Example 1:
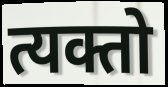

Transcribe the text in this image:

त्यक्तो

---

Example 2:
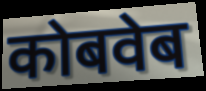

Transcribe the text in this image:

कोबवेब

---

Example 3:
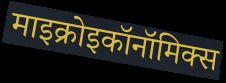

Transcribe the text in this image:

माइक्रोइकॉनॉमिक्स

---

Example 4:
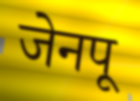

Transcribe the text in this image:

जेनपू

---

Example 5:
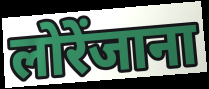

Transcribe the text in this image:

लोरेंजाना